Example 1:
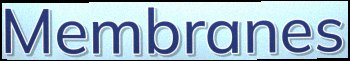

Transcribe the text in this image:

Membranes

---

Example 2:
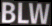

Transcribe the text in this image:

BLW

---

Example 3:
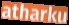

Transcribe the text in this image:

atharku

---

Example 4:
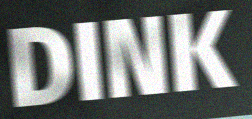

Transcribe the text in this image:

DINK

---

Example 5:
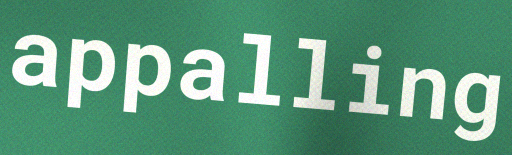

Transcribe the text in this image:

appalling